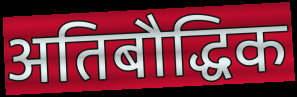
अतिबौद्धिक